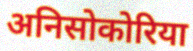
अनिसोकोरिया